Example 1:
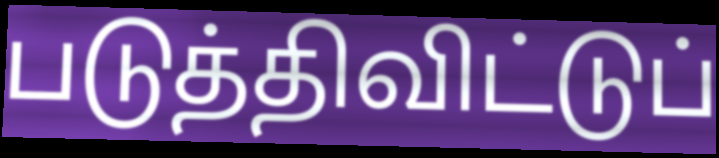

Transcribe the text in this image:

படுத்திவிட்டுப்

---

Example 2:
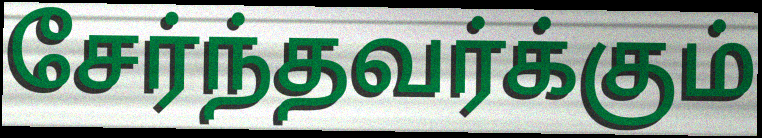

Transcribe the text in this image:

சேர்ந்தவர்க்கும்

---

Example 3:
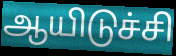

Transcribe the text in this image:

ஆயிடுச்சி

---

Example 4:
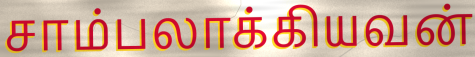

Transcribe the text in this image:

சாம்பலாக்கியவன்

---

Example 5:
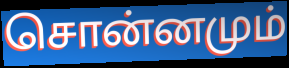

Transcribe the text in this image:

சொன்னமும்